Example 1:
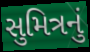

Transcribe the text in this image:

સુમિત્રનું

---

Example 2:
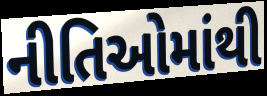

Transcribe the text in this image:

નીતિઓમાંથી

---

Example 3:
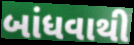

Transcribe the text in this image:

બાંધવાથી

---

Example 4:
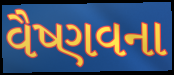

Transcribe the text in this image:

વૈષ્ણવના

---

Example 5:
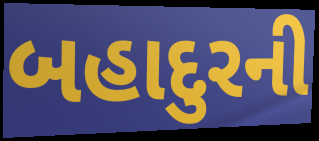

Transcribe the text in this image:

બહાદુરની